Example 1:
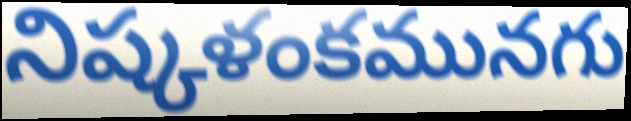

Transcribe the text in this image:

నిష్కళంకమునగు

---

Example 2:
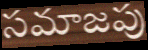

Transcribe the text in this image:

సమాజపు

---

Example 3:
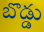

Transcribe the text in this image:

బొడ్డు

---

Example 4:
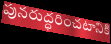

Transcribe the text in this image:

పునరుద్ధరించటానికి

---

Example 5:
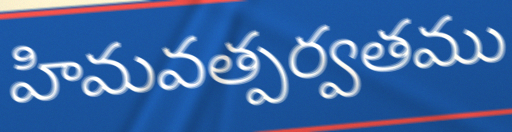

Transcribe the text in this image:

హిమవత్పర్వతము